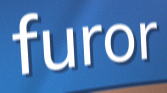
furor